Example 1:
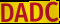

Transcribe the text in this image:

DADC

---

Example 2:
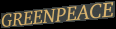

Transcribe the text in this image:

GREENPEACE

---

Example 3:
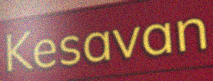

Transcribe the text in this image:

Kesavan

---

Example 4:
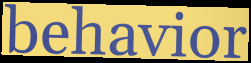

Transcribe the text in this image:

behavior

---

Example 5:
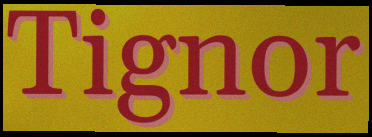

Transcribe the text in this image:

Tignor